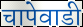
चापेवाडी